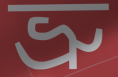
ভ্রু